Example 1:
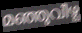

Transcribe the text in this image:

മഞ്ഞുവീഴ്ച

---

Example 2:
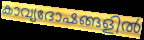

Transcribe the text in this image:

കാവ്യദോഷങ്ങളിൽ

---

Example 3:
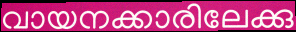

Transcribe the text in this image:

വായനക്കാരിലേക്കു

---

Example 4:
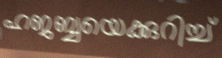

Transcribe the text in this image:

ഹജബ്ബയെക്കുറിച്ച്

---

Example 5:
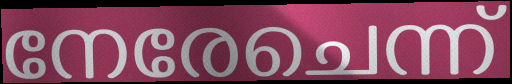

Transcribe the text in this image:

നേരേചെന്ന്